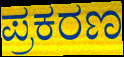
ಪ್ರಕರಣ